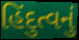
હિંદુત્વનું